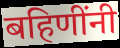
बहिणींनी